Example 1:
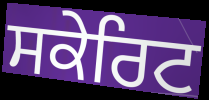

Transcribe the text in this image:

ਸਕੇਰਿਟ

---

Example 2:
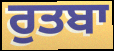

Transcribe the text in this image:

ਰੁਤਬਾ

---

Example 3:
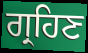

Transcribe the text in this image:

ਗ੍ਰਹਿਣ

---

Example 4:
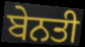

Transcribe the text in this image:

ਬੇਨਤੀ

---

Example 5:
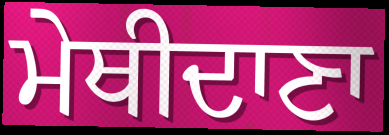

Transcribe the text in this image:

ਮੇਥੀਦਾਣਾ